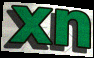
xn